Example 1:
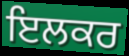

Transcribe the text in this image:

ਇਲਕਰ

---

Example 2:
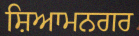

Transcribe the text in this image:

ਸ਼ਿਆਮਨਗਰ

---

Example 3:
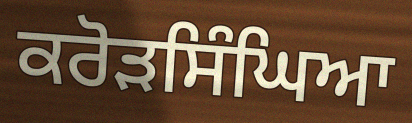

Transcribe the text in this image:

ਕਰੋੜਸਿੰਘਿਆ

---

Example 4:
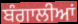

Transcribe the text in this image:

ਬੰਗਾਲੀਆਂ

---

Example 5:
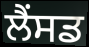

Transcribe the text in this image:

ਲੈਂਸਡ